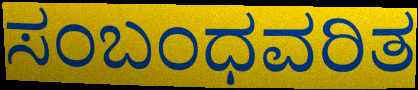
ಸಂಬಂಧವರಿತ